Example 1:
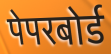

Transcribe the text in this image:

पेपरबोर्ड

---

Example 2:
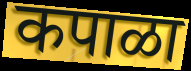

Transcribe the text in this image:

कपाळा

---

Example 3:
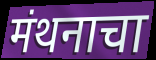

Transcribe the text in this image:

मंथनाचा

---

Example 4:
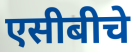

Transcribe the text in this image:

एसीबीचे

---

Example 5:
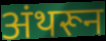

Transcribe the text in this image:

अंथरून